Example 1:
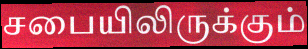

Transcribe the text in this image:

சபையிலிருக்கும்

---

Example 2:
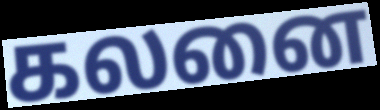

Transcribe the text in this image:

கலனை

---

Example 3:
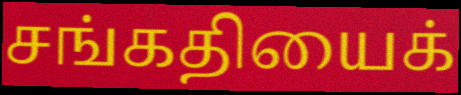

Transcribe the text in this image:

சங்கதியைக்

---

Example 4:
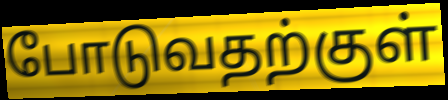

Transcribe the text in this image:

போடுவதற்குள்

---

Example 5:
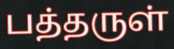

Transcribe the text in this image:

பத்தருள்